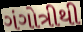
ગંગોત્રીથી